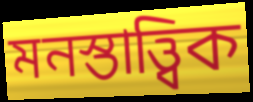
মনস্তাত্ত্বিক